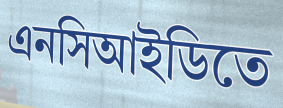
এনসিআইডিতে